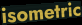
isometric